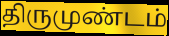
திருமுண்டம்